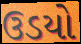
ઉડયો